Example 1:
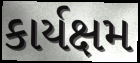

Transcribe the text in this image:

કાર્યક્ષમ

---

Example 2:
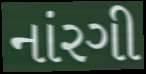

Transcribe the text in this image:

નાંરગી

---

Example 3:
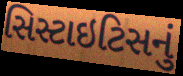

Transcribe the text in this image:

સિસ્ટાઇટિસનું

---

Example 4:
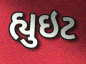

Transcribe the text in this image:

હ્યુઇટ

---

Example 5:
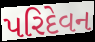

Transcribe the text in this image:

પરિદેવન